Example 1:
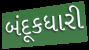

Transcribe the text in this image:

બંદૂકધારી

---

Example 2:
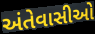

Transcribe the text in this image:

અંતેવાસીઓ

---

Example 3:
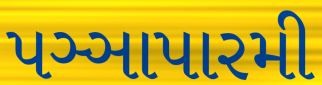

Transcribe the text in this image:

પઞ્ઞાપારમી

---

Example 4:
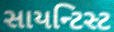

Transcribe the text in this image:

સાયન્ટિસ્ટ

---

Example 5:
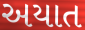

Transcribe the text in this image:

અયાત